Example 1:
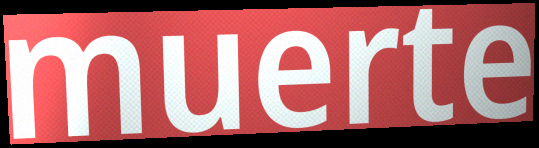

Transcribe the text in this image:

muerte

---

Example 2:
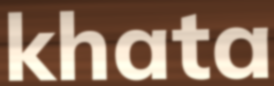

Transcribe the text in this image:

khata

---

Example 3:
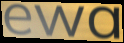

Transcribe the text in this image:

ewa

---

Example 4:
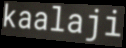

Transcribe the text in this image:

kaalaji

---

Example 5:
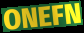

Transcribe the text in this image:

ONEFN